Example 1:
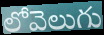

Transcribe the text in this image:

లోవెలుగు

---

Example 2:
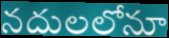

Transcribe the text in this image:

నదులలోనూ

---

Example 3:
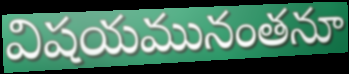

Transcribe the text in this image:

విషయమునంతనూ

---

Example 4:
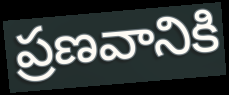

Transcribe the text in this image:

ప్రణవానికి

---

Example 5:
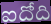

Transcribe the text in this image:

ఐదోది